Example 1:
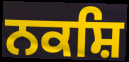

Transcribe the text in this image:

ਨਕਸ਼ਿ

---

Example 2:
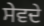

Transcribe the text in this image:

ਸੇਵਦੇ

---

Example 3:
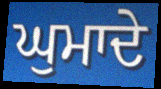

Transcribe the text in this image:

ਘੁਮਾਦੇ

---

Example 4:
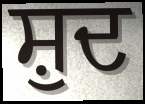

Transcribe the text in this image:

ਸ਼ੁਦ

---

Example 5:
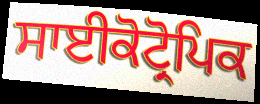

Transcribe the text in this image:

ਸਾਈਕੋਟ੍ਰੋਪਿਕ